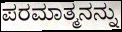
ಪರಮಾತ್ಮನನ್ನು